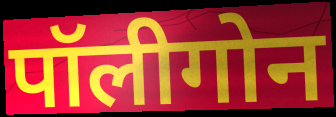
पॉलीगोन